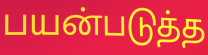
பயன்படுத்த